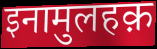
इनामुलहक़